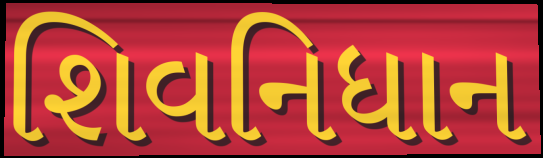
શિવનિધાન